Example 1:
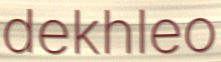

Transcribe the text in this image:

dekhleo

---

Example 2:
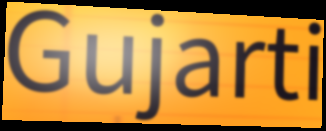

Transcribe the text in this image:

Gujarti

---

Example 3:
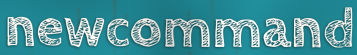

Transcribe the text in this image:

newcommand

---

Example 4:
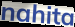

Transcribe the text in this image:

nahita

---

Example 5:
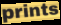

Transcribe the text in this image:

prints